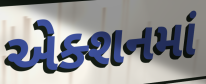
એક્શનમાં